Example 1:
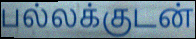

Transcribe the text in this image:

பல்லக்குடன்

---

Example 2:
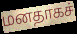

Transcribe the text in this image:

மனதாகச்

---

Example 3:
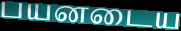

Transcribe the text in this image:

பயனடைய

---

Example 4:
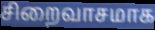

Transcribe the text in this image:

சிறைவாசமாக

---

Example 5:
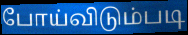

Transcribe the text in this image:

போய்விடும்படி